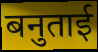
बनुताई